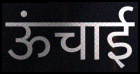
ऊंचाई